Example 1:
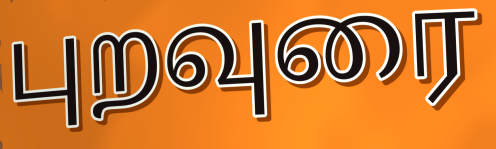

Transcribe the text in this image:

புறவுரை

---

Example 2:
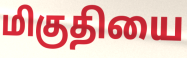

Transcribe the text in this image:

மிகுதியை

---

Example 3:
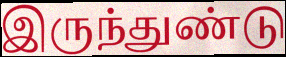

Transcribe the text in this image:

இருந்துண்டு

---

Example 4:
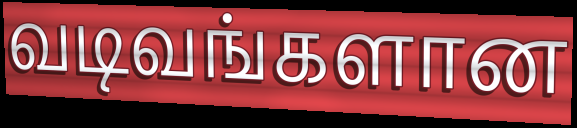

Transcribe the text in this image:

வடிவங்களான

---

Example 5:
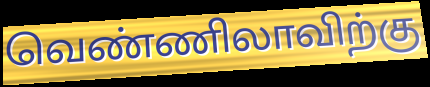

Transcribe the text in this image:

வெண்ணிலாவிற்கு